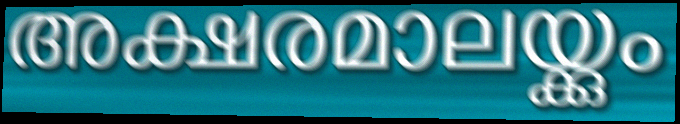
അക്ഷരമാലയ്ക്കും